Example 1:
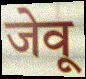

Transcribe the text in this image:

जेवू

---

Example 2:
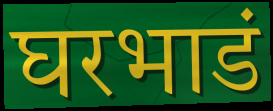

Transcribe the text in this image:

घरभाडं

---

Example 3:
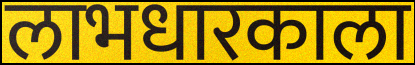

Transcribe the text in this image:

लाभधारकाला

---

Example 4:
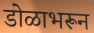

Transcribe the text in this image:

डोळाभरून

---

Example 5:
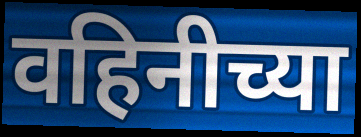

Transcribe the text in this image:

वहिनीच्या